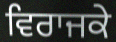
ਵਿਰਾਜਕੇ